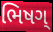
ભિષગ્